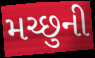
મચ્છુની